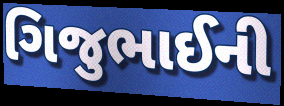
ગિજુભાઈની